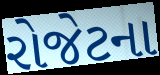
રોજેટના